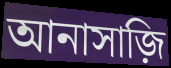
আনাসাজ়ি